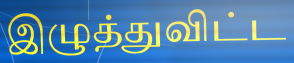
இழுத்துவிட்ட